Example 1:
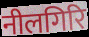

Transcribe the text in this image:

नीलगिरि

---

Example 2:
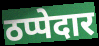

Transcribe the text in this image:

ठप्पेदार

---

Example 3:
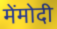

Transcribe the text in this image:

मेंमोदी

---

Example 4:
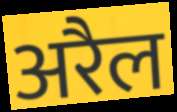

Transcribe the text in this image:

अरैल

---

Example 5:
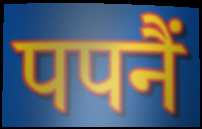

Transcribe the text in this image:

पपनैं